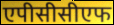
एपीसीसीएफ